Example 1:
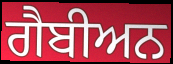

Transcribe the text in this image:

ਗੈਬੀਅਨ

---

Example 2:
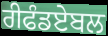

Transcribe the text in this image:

ਰੀਫੰਡਏਬਲ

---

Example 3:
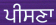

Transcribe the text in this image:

ਪੀਸਣਾ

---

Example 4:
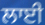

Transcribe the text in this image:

ਲਾਈ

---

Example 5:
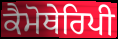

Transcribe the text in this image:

ਕੈਮੋਥੇਰਿਪੀ